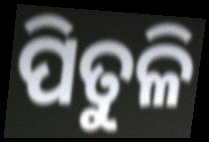
ପିତୁଳି